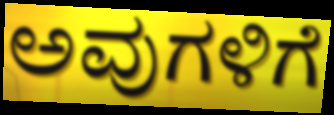
ಅವುಗಳಿಗೆ